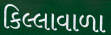
કિલ્લાવાળા